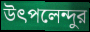
উৎপলেন্দুর